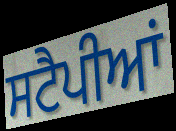
ਸਟੈਪੀਆਂ